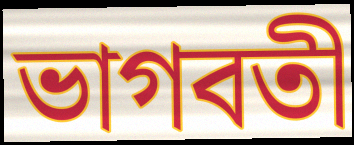
ভাগবতী